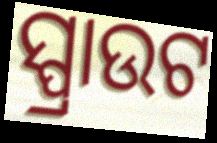
ସ୍ପ୍ରାଉଟ